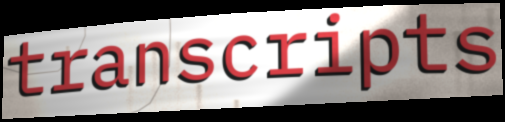
transcripts